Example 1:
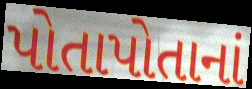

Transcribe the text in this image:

પોતાપોતાનાં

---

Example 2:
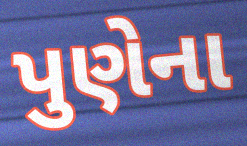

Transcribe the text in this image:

પુણેના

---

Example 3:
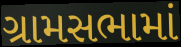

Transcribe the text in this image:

ગ્રામસભામાં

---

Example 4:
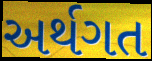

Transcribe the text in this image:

અર્થગત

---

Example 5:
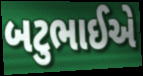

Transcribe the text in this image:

બટુભાઈએ